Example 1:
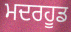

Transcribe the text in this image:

ਮਦਰਹੂਡ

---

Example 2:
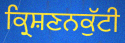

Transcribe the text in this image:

ਕ੍ਰਿਸ਼ਣਨਕੁੱਟੀ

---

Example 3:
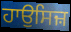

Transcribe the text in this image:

ਹਾਉਸਿਜ਼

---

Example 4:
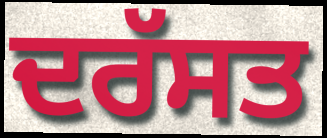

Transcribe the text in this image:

ਦਰੱਸਤ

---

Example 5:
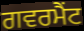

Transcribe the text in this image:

ਗਵਰਮੈਂਟ